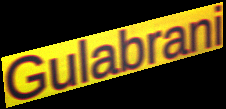
Gulabrani